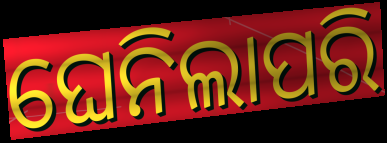
ଘେନିଲାପରି